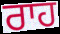
ਰਾਹ